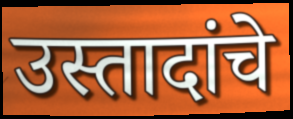
उस्तादांचे